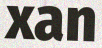
xan